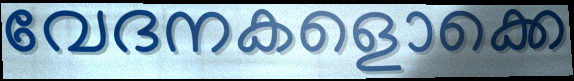
വേദനകളൊക്കെ